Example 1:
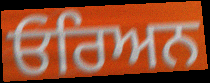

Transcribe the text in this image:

ਓਰਿਅਨ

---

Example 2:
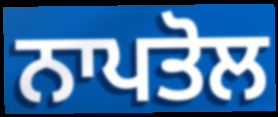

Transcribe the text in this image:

ਨਾਪਤੋਲ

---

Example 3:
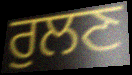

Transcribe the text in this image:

ਰੁਲਣ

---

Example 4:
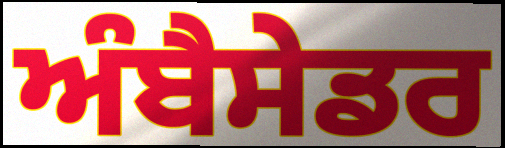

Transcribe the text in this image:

ਅੰਬੈਸੇਡਰ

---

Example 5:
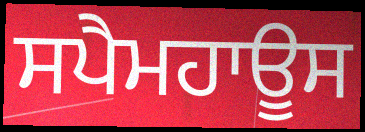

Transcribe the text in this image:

ਸਪੈਮਹਾਊਸ